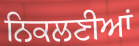
ਨਿਕਲਣੀਆਂ